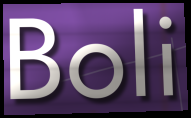
Boli